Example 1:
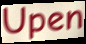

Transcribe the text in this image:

Upen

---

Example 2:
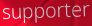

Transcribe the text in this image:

supporter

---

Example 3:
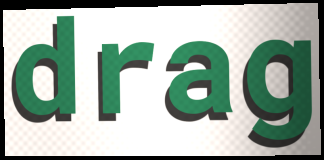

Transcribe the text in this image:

drag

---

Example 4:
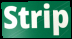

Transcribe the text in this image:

Strip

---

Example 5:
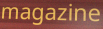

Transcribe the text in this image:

magazine